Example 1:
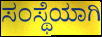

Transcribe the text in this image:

ಸಂಸ್ಥೆಯಾಗಿ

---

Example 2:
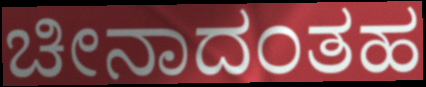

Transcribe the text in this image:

ಚೀನಾದಂತಹ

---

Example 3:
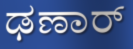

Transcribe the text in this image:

ಢಣಾರ್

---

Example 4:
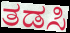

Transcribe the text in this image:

ತಡಸಿ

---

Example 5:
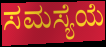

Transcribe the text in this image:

ಸಮಸ್ಯೆಯೆ